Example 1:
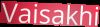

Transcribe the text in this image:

Vaisakhi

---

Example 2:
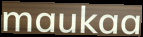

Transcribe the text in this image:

maukaa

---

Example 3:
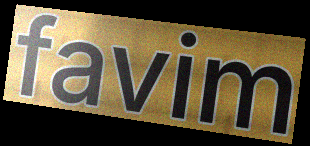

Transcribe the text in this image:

favim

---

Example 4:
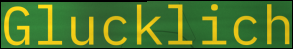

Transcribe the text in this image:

Glucklich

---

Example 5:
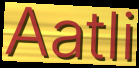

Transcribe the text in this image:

Aatli